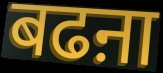
बढऩा